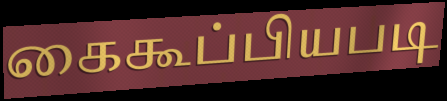
கைகூப்பியபடி